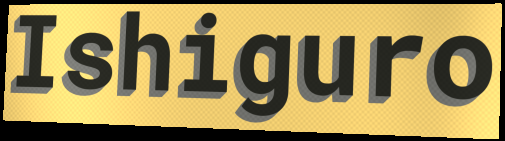
Ishiguro